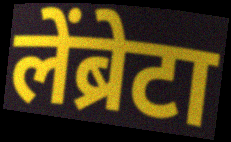
लेंब्रेटा